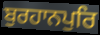
ਬੁਰਹਾਨਪੁਰਿ